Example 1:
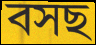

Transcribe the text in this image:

বসছ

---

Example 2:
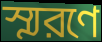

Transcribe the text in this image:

স্মরণে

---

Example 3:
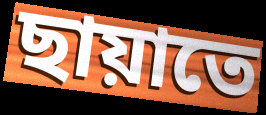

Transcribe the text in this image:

ছায়াতে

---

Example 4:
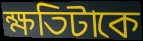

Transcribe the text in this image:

ক্ষতিটাকে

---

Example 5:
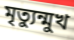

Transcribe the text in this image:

মৃত্যুন্মুখ